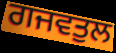
ਗਜਵਤੁਲ